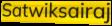
Satwiksairaj